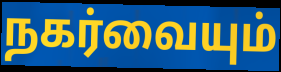
நகர்வையும்